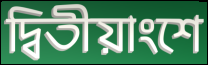
দ্বিতীয়াংশে